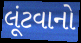
લૂંટવાનો